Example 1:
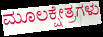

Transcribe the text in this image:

ಮೂಲಕ್ಷೇತ್ರಗಳು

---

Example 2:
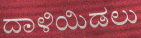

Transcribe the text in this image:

ದಾಳಿಯಿಡಲು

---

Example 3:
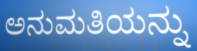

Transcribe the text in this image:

ಅನುಮತಿಯನ್ನು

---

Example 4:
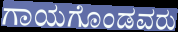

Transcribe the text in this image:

ಗಾಯಗೊಂಡವರು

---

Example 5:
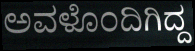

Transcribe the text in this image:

ಅವಳೊಂದಿಗಿದ್ದ